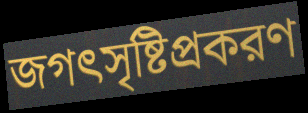
জগৎসৃষ্টিপ্রকরণ